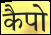
कैपो